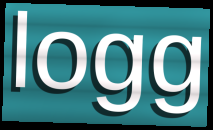
logg